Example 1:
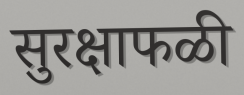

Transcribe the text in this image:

सुरक्षाफळी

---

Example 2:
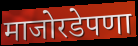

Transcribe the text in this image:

माजोरडेपणा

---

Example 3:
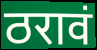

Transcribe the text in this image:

ठरावं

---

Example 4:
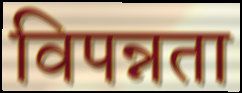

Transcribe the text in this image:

विपन्नता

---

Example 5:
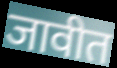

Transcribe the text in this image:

जावीत